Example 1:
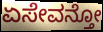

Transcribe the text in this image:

ಏಸೇವನ್ತೋ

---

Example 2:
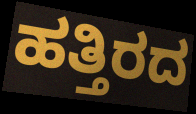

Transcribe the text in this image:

ಹತ್ತಿರದ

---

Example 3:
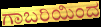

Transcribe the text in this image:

ಗಾಬರಿಯಿಂದ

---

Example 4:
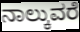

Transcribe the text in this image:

ನಾಲ್ಕುವರೆ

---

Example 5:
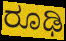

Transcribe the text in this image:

ರೂಢಿ